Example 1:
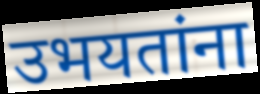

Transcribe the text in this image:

उभयतांना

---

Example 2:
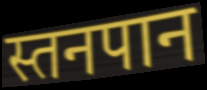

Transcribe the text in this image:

स्तनपान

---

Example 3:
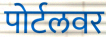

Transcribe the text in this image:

पोर्टलवर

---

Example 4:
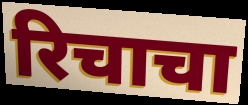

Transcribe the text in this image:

रिचाचा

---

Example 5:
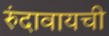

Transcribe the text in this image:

रुंदावायची